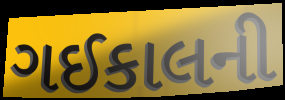
ગઈકાલની